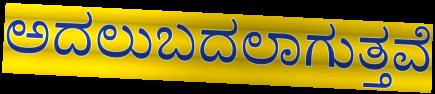
ಅದಲುಬದಲಾಗುತ್ತವೆ